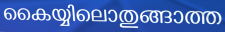
കൈയ്യിലൊതുങ്ങാത്ത